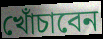
খোঁচাবেন